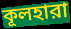
কূলহারা